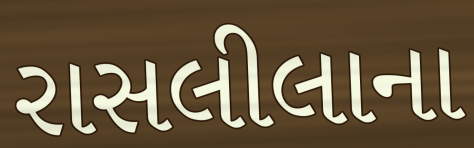
રાસલીલાના